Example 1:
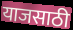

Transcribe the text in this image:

याजसाठी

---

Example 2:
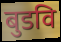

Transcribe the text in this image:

बुडवि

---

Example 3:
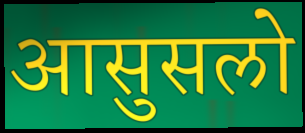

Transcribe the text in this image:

आसुसलो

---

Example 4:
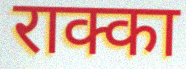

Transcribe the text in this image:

राक्का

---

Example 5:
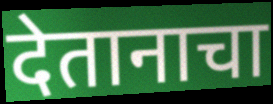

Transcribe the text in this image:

देतानाचा